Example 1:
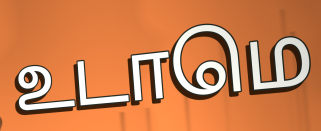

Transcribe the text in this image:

உடாமெ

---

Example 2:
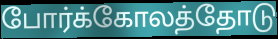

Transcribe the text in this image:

போர்க்கோலத்தோடு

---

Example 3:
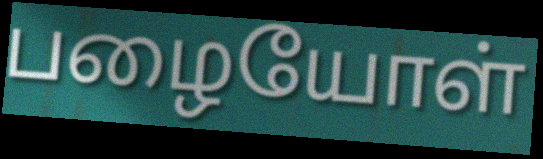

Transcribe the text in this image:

பழையோள்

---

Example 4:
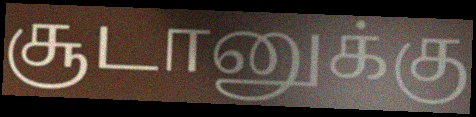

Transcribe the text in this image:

சூடானுக்கு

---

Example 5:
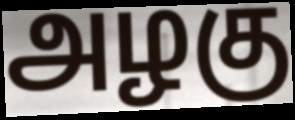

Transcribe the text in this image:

அழகு